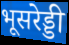
भूसरेड्डी